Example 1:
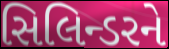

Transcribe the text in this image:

સિલિન્ડરને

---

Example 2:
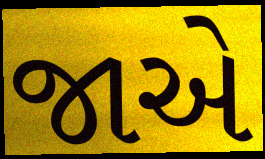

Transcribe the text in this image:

જાએ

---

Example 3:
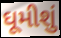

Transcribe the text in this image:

ઘૂમીશું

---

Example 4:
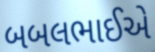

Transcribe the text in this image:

બબલભાઈએ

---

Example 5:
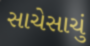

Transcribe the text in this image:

સાચેસાચું